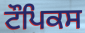
ਟੌਪਿਕਸ